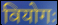
वियोगः